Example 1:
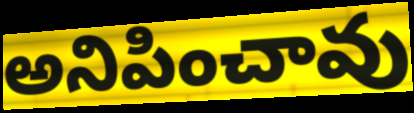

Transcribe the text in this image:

అనిపించావు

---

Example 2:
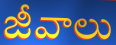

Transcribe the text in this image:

జీవాలు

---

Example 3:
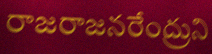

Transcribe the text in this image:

రాజరాజనరేంద్రుని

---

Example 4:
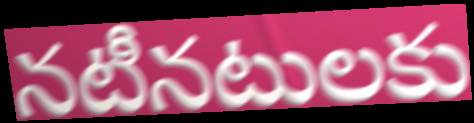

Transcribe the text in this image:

నటీనటులకు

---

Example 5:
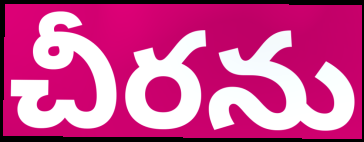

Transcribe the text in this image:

చీరను